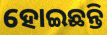
ହୋଇଛନ୍ତି